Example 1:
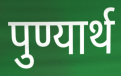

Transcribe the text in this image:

पुण्यार्थ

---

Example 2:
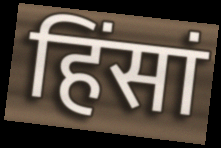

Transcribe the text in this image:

हिंसां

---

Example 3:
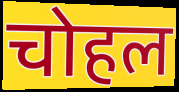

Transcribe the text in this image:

चोहल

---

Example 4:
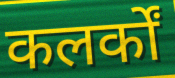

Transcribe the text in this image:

कलर्कों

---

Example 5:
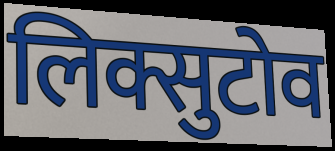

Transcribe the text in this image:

लिक्सुटोव